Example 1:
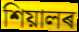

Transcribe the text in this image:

শিয়ালৰ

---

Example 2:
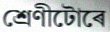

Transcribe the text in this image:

শ্ৰেণীটোৰে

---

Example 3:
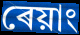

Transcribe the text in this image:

ৰেয়াং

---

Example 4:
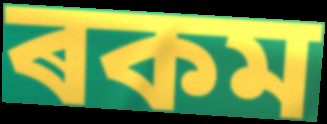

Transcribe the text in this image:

ৰকম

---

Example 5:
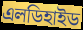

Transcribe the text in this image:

এলডিহাইড